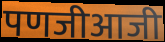
पणजीआजी